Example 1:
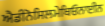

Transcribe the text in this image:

ਐਡੀਨੋਸਿਲਮੇਥਿਓਨਾਈਨ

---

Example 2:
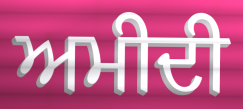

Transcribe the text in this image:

ਅਮੀਦੀ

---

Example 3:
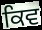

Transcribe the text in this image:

ਕਿਵ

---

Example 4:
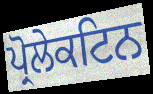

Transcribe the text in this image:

ਪ੍ਰੋਲੇਕਟਿਨ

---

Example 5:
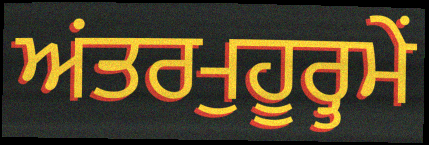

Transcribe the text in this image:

ਅਂਤਰ੍ਮੁਹੂਰ੍ਤਮੇਂ